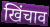
खिंचाव